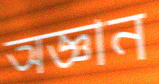
অজ্ঞান